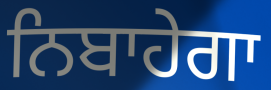
ਨਿਬਾਹੇਗਾ